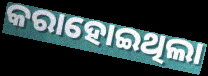
କରାହୋଇଥିଲା